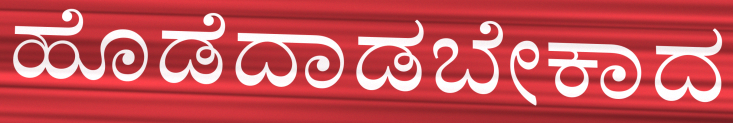
ಹೊಡೆದಾಡಬೇಕಾದ